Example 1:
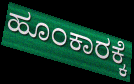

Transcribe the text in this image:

ಹೂಂಕಾರಕ್ಕೆ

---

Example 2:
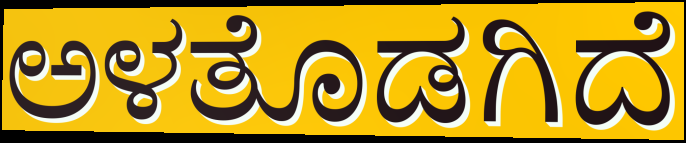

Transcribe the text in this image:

ಅಳತೊಡಗಿದೆ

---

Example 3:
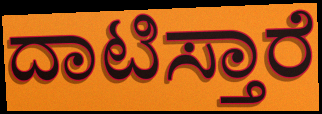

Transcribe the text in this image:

ದಾಟಿಸ್ತಾರೆ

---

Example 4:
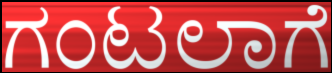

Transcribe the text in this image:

ಗಂಟಲಾಗೆ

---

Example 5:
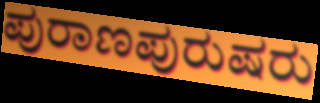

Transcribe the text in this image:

ಪುರಾಣಪುರುಷರು